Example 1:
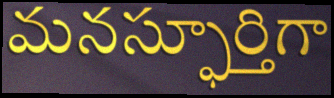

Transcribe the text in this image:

మనస్ఫూర్తిగా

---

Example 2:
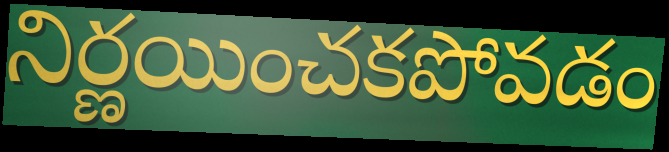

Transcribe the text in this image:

నిర్ణయించకపోవడం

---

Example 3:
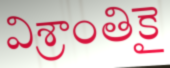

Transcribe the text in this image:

విశ్రాంతికై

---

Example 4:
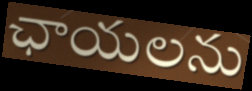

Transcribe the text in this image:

ఛాయలను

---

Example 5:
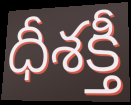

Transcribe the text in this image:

ధీశక్తీ